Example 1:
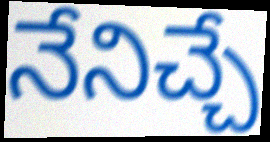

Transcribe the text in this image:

నేనిచ్చే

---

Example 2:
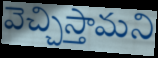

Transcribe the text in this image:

వెచ్చిస్తామని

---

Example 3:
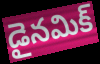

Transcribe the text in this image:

డైనమిక్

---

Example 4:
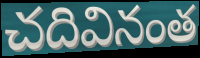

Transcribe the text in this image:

చదివినంత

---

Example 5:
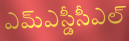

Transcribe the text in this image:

ఎమ్ఎస్డీసీఎల్